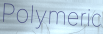
Polymeric